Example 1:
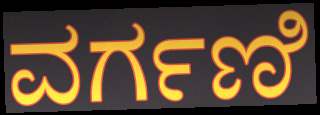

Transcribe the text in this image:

ವರ್ಗಣಿ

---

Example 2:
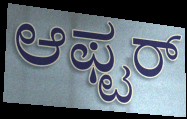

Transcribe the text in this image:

ಆಫ್ಟರ್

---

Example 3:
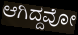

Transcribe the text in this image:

ಆಗಿದ್ದವೋ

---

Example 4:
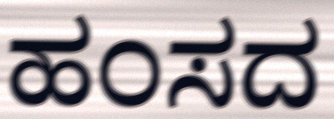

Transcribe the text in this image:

ಹಂಸದ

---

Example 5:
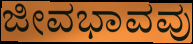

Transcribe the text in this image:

ಜೀವಭಾವವು